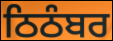
ਠਿਠੰਬਰ